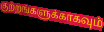
குற்றங்களுக்காகவும்